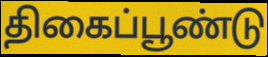
திகைப்பூண்டு